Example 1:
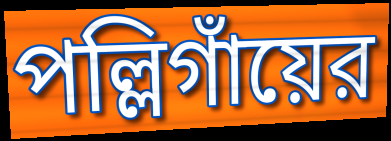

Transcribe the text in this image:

পল্লিগাঁয়ের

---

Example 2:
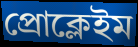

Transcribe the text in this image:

প্রোক্লেইম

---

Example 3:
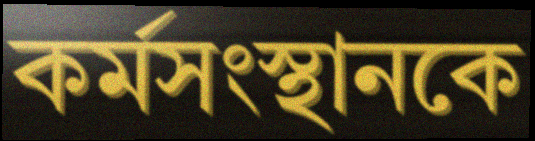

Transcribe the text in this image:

কর্মসংস্থানকে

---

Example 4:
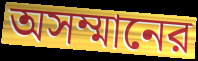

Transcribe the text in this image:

অসম্মানের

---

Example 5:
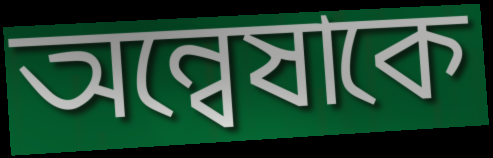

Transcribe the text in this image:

অন্বেষাকে